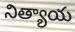
నిత్యాయ